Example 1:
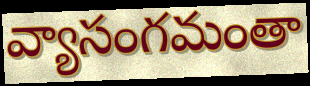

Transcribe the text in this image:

వ్యాసంగమంతా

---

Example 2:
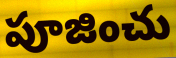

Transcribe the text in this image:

పూజించు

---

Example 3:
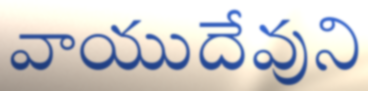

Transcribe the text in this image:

వాయుదేవుని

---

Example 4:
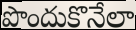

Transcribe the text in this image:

పొందుకొనేలా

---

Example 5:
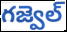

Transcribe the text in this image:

గజ్వెల్